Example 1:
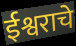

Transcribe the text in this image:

ईश्वराचे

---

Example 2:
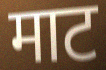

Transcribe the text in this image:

माट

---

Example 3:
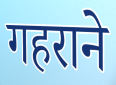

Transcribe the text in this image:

गहराने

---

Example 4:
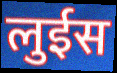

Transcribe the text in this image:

लुईस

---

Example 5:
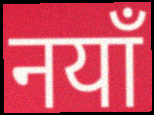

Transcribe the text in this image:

नयाँ